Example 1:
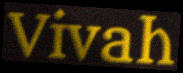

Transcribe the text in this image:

Vivah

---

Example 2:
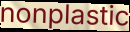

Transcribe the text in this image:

nonplastic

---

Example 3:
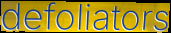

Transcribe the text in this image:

defoliators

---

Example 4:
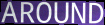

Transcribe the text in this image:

AROUND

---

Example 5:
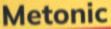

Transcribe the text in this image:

Metonic